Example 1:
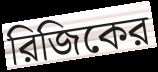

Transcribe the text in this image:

রিজিকের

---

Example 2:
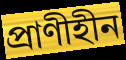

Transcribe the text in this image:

প্রাণীহীন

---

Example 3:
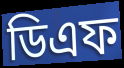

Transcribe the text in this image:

ডিএফ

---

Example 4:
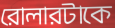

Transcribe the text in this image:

রোলারটাকে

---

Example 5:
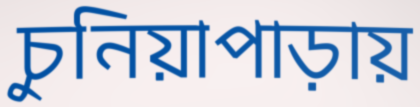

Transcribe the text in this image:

চুনিয়াপাড়ায়